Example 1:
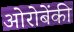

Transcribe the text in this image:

ओरोबेंकी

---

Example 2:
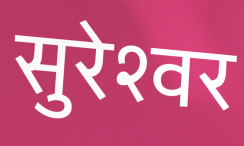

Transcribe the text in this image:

सुरेश्वर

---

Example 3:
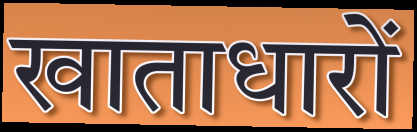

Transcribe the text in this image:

खाताधारों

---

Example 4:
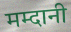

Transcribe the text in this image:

मम्दानी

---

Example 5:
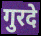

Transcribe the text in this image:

गुरदे